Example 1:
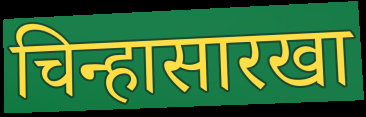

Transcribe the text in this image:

चिन्हासारखा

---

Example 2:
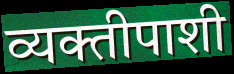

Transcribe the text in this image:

व्यक्तीपाशी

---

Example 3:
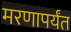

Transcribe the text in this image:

मरणापर्यंत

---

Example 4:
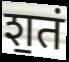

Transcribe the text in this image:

श॒तं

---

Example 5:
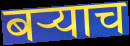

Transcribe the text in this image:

बऱ्याच